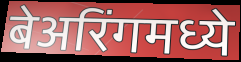
बेअरिंगमध्ये